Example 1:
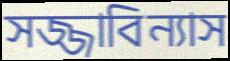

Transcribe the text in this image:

সজ্জাবিন্যাস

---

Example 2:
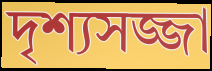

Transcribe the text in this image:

দৃশ্যসজ্জা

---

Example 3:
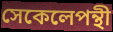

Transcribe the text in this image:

সেকেলেপন্থী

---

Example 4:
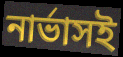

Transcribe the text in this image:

নার্ভাসই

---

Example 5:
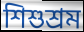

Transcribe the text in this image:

শিশুশ্রম